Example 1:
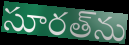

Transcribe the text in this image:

సూరత్‌ను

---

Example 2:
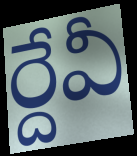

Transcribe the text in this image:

ర్దేవీ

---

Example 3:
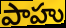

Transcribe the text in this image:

పాహు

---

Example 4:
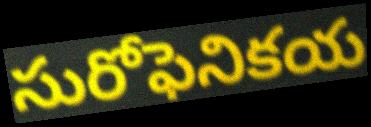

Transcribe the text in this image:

సురోఫెనికయ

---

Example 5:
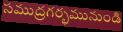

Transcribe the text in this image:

సముద్రగర్భమునుండి